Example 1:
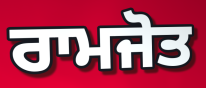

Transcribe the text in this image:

ਰਾਮਜੋਤ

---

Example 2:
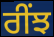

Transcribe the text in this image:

ਰੀਂਝ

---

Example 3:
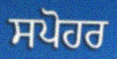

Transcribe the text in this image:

ਸਪੋਹਰ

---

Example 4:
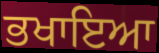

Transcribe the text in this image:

ਭਖਾਇਆ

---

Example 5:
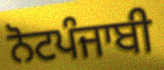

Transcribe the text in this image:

ਨੋਟਪੰਜਾਬੀ